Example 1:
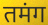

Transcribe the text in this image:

तमंग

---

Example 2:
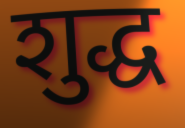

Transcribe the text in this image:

शुद्ध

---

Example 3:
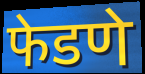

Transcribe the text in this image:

फेडणे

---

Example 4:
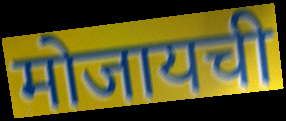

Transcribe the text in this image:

मोजायची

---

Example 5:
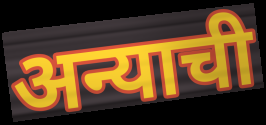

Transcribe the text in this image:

अन्याची